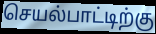
செயல்பாட்டிற்கு